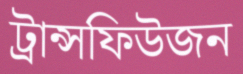
ট্ৰান্সফিউজন